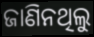
ଜାଣିନଥିଲୁ